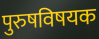
पुरुषविषयक